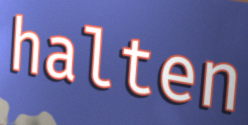
halten